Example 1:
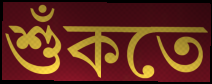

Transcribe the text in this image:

শুঁকতে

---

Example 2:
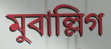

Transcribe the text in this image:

মুবাল্লিগ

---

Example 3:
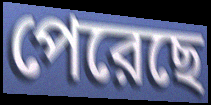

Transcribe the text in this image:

পেরেছে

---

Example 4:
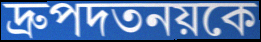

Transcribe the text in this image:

দ্রুপদতনয়কে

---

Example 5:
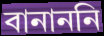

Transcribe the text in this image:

বানাননি